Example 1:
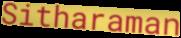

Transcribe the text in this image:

Sitharaman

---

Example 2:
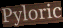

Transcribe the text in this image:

Pyloric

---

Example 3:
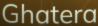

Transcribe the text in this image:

Ghatera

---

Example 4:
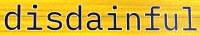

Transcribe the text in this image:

disdainful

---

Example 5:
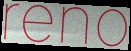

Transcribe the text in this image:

reno